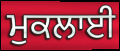
ਮੁਕਲਾਈ